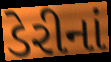
ડેરીનાં